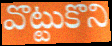
వొట్టుకొని